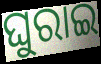
ଘୁରାଇ